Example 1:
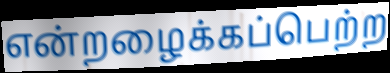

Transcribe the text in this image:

என்றழைக்கப்பெற்ற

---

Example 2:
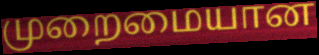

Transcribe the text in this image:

முறைமையான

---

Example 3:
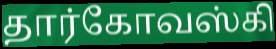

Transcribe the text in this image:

தார்கோவஸ்கி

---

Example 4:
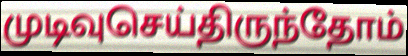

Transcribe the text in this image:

முடிவுசெய்திருந்தோம்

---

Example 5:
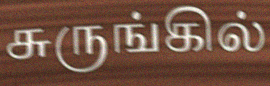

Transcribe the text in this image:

சுருங்கில்